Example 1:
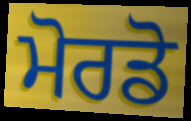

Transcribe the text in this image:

ਮੋਰਡੋ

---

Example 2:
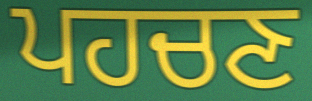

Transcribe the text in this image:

ਪਹਚਣ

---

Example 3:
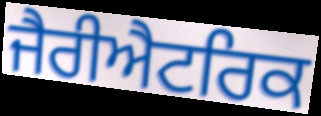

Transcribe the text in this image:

ਜੈਰੀਐਟਰਿਕ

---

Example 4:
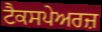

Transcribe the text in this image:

ਟੈਕਸਪੇਅਰਜ਼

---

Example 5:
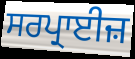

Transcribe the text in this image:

ਸਰਪ੍ਰਾਈਜ਼